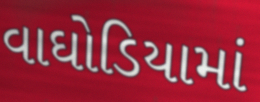
વાઘોડિયામાં